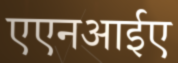
एएनआईए